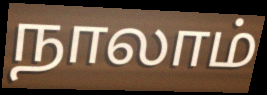
நாலாம்